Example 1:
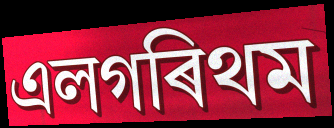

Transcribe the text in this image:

এলগৰিথম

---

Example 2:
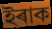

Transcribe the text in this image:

ইৰাক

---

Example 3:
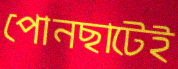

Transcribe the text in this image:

পোনছাটেই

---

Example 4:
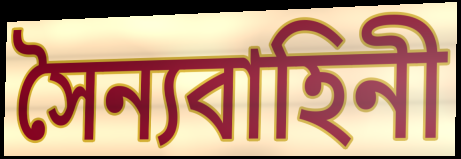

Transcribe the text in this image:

সৈন্যবাহিনী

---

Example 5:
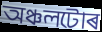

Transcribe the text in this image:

অঞ্চলটোৰ